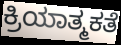
ಕ್ರಿಯಾತ್ಮಕತೆ